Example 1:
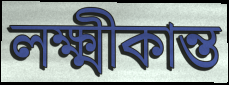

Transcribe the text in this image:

লক্ষ্মীকান্ত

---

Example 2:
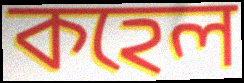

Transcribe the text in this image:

কহেল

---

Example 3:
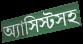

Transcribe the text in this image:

অ্যাসিস্টসহ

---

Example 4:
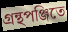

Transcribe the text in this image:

গ্রন্থপঞ্জিতে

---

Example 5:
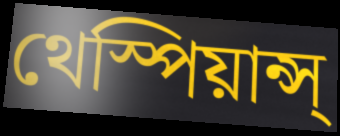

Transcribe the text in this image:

থেস্পিয়ান্স্